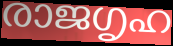
രാജഗൃഹ